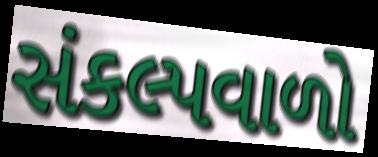
સંકલ્પવાળો